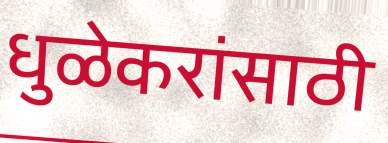
धुळेकरांसाठी